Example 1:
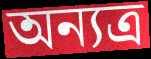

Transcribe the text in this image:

অন্যত্র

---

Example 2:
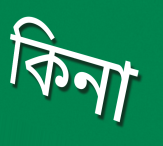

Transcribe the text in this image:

কিনা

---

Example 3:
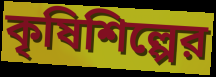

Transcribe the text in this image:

কৃষিশিল্পের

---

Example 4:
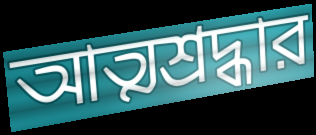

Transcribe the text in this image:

আত্মশ্রদ্ধার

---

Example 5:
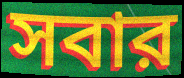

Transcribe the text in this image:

সবার